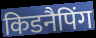
किडनैपिंग